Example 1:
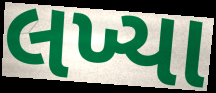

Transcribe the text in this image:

લખ્યા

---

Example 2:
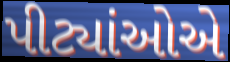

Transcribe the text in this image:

પીટ્યાંઓએ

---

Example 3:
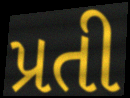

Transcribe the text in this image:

પ્રતી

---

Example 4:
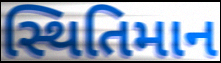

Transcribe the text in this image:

સ્થિતિમાન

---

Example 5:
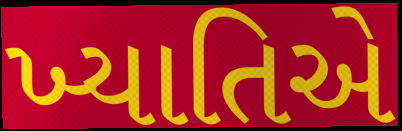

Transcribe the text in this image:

ખ્યાતિએ